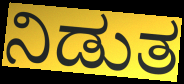
ನಿಡುತ